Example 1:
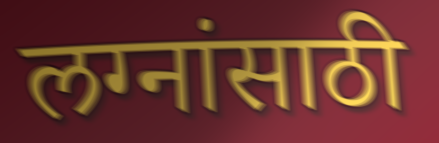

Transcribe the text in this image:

लग्नांसाठी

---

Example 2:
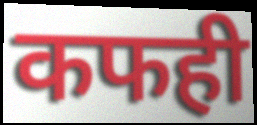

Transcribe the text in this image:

कफही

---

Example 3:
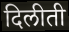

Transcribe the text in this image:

दिलीती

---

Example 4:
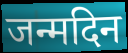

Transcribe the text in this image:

जन्मदिन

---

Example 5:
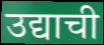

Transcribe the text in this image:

उद्याची